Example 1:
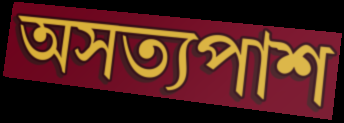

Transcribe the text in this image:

অসত্যপাশ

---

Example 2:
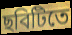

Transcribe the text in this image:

ছবিটিতে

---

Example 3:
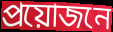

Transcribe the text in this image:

প্রয়োজনে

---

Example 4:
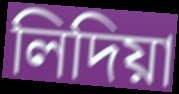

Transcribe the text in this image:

লিদিয়া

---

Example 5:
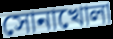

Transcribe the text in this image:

সোনাখোলা